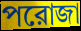
পরোজা